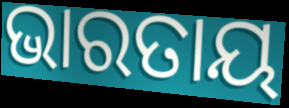
ଭାରତାୟ